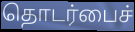
தொடர்பைச்